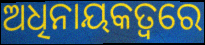
ଅଧିନାୟକତ୍ବରେ